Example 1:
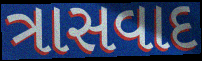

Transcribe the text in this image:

ત્રાસવાદ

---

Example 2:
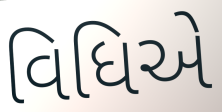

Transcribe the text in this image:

વિધિએ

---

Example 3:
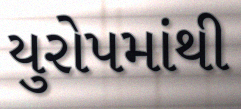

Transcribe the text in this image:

યુરોપમાંથી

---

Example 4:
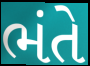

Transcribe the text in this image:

ભંતે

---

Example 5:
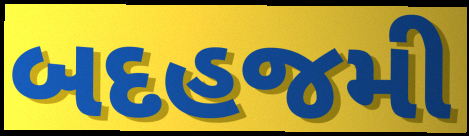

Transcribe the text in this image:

બદહજમી